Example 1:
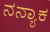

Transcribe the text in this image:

ನನ್ಯಾಕ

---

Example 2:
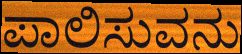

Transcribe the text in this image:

ಪಾಲಿಸುವನು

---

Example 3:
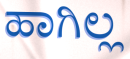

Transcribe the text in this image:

ಹಾಗಿಲ್ಲ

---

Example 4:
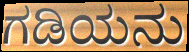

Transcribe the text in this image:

ಗಡಿಯನು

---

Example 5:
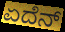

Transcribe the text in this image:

ಏದೆನ್